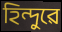
হিন্দুৱে